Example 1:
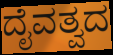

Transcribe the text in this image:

ದೈವತ್ವದ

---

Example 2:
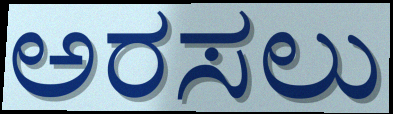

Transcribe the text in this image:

ಅರಸಲು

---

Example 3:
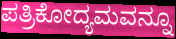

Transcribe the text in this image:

ಪತ್ರಿಕೋದ್ಯಮವನ್ನೂ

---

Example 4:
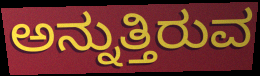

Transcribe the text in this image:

ಅನ್ನುತ್ತಿರುವ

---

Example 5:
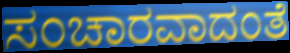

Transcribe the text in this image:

ಸಂಚಾರವಾದಂತೆ